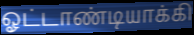
ஓட்டாண்டியாக்கி